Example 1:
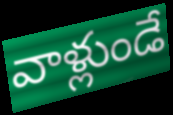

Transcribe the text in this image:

వాళ్లుండే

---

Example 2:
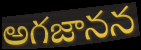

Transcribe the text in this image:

అగజానన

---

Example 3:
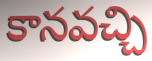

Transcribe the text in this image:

కానవచ్చి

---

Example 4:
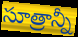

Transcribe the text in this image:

సూత్రాన్నీ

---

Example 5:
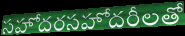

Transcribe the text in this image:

సహోదరసహోదరీలతో